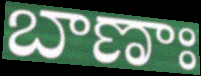
బాణాః